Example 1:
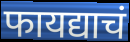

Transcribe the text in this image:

फायद्याचं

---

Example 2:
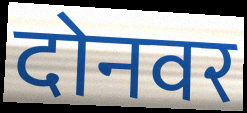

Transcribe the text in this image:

दोनवर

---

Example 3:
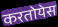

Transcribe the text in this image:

करतोयेस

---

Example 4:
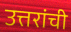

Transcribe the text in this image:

उत्तरांची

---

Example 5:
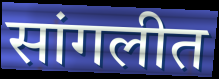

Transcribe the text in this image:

सांगलीत